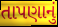
તાપણાનું